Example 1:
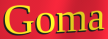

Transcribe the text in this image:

Goma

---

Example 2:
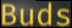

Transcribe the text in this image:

Buds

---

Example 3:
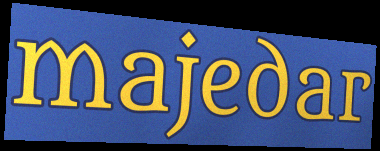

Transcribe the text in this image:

majedar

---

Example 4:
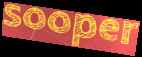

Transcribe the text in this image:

sooper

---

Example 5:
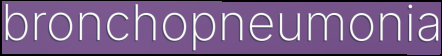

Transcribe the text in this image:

bronchopneumonia